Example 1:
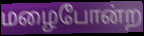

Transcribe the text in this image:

மழைபோன்ற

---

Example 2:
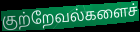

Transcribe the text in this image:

குற்றேவல்களைச்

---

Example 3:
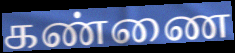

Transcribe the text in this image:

கண்ணை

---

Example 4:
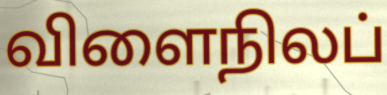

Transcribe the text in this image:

விளைநிலப்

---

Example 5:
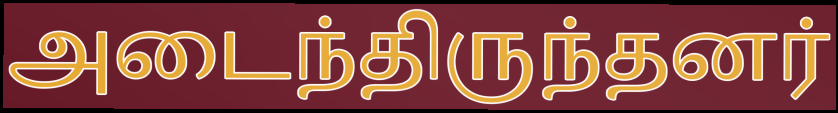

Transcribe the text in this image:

அடைந்திருந்தனர்